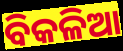
ବିକଳିଆ